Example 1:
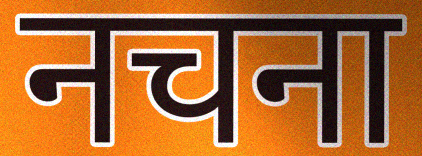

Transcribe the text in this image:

नचना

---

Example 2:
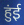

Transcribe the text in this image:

हुंई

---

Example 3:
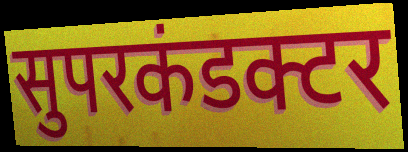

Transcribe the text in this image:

सुपरकंडक्टर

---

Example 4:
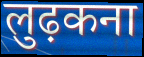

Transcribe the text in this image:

लुढ़कना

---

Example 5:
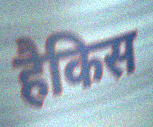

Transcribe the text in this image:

हैकिस